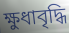
ক্ষুধাবৃদ্ধি